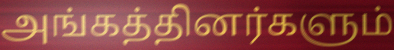
அங்கத்தினர்களும்